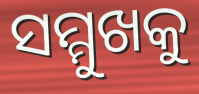
ସମ୍ମୁଖକୁ